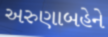
અરુણાબહેને